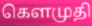
கௌமுதி